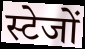
स्टेजों